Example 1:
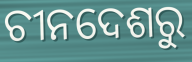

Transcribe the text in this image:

ଚୀନଦେଶରୁ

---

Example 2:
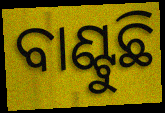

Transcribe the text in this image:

ବାଣ୍ଟୁଛି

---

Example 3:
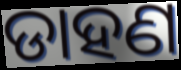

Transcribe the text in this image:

ଡାହଣ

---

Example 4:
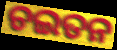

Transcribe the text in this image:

ଚଇତନ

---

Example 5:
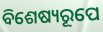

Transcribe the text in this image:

ବିଶେଷ୍ୟରୂପେ